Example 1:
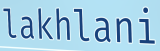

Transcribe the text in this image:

lakhlani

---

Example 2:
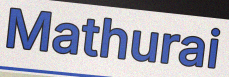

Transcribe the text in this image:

Mathurai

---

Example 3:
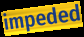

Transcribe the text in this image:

impeded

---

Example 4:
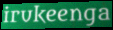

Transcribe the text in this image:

irukeenga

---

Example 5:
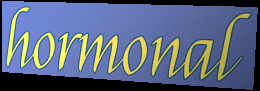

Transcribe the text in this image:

hormonal